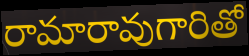
రామారావుగారితో